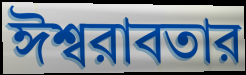
ঈশ্বরাবতার